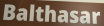
Balthasar